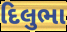
દિલુભા